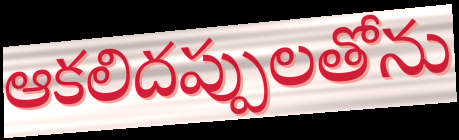
ఆకలిదప్పులతోను